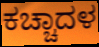
ಕಚ್ಚಾದಳ